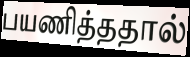
பயணித்ததால்